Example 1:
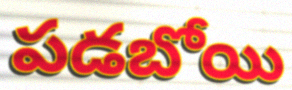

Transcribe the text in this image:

పడబోయి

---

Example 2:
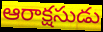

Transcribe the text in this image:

ఆరాక్షసుడు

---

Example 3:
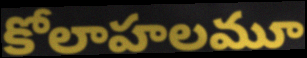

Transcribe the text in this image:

కోలాహలమూ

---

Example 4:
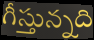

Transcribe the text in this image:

గీస్తున్నది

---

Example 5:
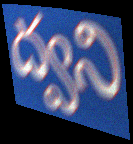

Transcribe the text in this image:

ద్వని